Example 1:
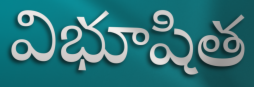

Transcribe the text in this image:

విభూషిత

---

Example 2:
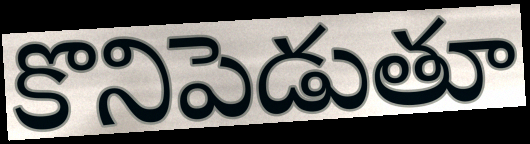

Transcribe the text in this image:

కొనిపెడుతూ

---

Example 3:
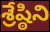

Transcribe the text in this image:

శ్రేష్ఠిని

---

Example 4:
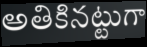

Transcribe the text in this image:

అతికినట్టుగా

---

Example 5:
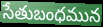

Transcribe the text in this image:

సేతుబంధమున